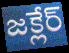
జక్లేర్